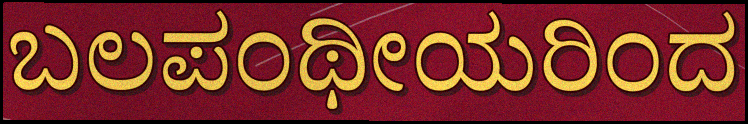
ಬಲಪಂಥೀಯರಿಂದ